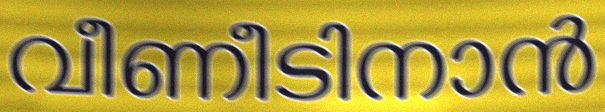
വീണീടിനാൻ